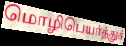
மொழிபெயர்த்துச்